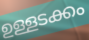
ഉള്ളടക്കം